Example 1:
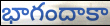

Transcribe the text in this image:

భాగందాకా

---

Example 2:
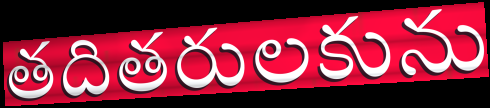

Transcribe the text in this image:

తదితరులకును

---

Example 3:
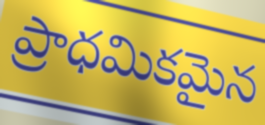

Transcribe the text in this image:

ప్రాధమికమైన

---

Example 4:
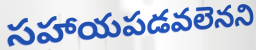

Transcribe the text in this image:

సహాయపడవలెనని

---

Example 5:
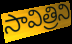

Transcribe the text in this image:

సావిత్రిని